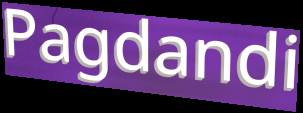
Pagdandi